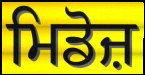
ਮਿਡੋਜ਼